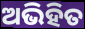
ଅଭିହିତ